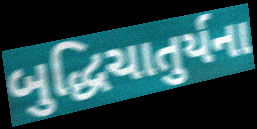
બુદ્ધિચાતુર્યના